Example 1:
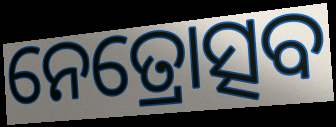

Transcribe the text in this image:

ନେତ୍ରୋତ୍ସବ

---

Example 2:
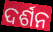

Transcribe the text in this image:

ଦର୍ଶନ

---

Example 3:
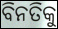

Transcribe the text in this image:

ବିନତିକୁ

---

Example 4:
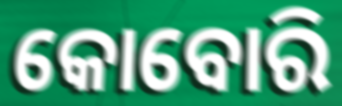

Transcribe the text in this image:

କୋବୋରି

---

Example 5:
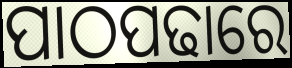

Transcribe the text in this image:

ପାଠପଢାରେ